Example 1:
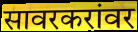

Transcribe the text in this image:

सावरकरांवर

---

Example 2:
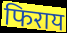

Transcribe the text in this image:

फिराय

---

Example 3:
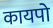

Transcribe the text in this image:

कायपो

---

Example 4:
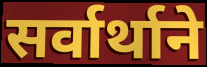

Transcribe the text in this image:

सर्वार्थाने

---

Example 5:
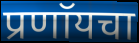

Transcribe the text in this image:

प्रणॉयचा